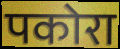
पकोरा